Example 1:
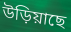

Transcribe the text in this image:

উড়িয়াছে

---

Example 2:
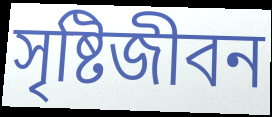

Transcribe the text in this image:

সৃষ্টিজীবন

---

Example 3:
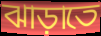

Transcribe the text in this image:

ঝাড়াতে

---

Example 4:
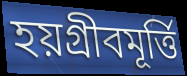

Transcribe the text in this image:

হয়গ্রীবমূর্ত্তি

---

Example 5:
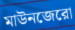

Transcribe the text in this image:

মাউনজেরো